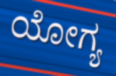
ಯೋಗ್ಯ